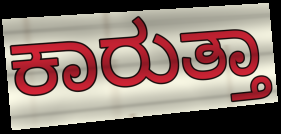
ಕಾರುತ್ತಾ